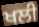
ਖਲੀ